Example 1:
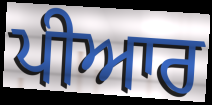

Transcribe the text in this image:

ਪੀਆਰ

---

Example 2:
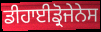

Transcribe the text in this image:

ਡੀਹਾਈਡ੍ਰੋਜੇਨੇਸ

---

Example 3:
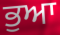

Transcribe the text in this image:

ਭੁਆ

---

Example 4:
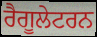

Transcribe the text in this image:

ਰੈਗੂਲੇਟਰਨ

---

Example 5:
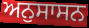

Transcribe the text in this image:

ਅਨੁਸਾਸਨ